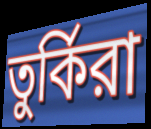
তুর্কিরা